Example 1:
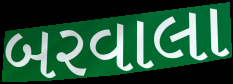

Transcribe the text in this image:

બરવાલા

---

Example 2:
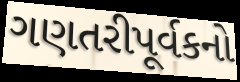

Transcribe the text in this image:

ગણતરીપૂર્વકનો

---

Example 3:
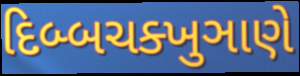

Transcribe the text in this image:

દિબ્બચક્ખુઞાણે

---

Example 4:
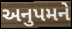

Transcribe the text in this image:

અનુપમને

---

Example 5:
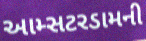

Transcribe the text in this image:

આમ્સટરડામની